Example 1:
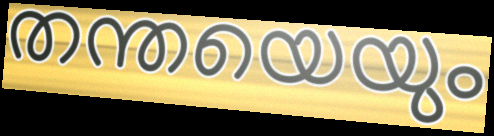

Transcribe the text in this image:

തന്തയെയും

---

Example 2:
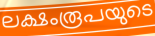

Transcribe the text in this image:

ലക്ഷംരൂപയുടെ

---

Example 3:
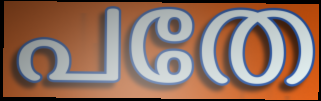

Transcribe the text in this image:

പതേ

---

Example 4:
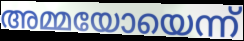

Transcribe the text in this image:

അമ്മയോയെന്ന്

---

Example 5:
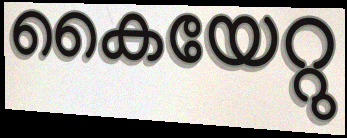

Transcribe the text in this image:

കൈയേറ്റു